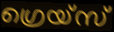
ഗ്രെയ്സ്